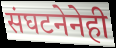
संघटनेनेही